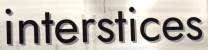
interstices